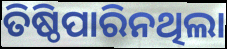
ତିଷ୍ଠିପାରିନଥିଲା